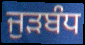
ਜੁੜਬੰਧ